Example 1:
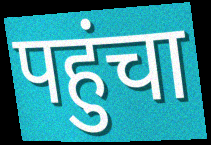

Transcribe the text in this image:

पहुंचा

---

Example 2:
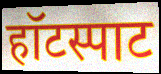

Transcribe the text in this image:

हॉटस्पाट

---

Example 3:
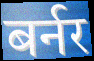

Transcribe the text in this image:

बर्नर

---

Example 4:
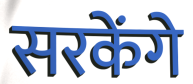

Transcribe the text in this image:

सरकेंगे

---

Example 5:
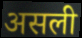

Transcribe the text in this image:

असली